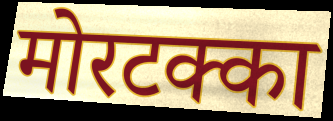
मोरटक्का